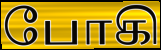
போகி